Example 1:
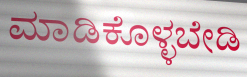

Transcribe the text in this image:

ಮಾಡಿಕೊಳ್ಳಬೇಡಿ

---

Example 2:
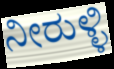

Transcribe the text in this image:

ನೀರುಳ್ಳಿ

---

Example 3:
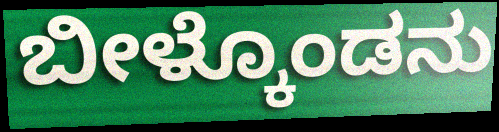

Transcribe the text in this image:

ಬೀಳ್ಕೊಂಡನು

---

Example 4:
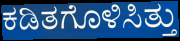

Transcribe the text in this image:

ಕಡಿತಗೊಳಿಸಿತ್ತು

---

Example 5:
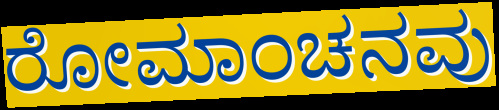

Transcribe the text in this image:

ರೋಮಾಂಚನವು